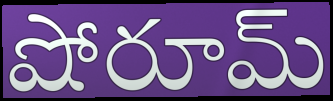
షోరూమ్